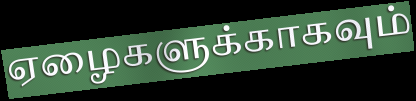
ஏழைகளுக்காகவும்